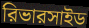
রিভারসাইড